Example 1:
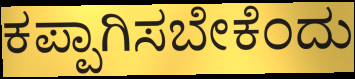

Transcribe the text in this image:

ಕಪ್ಪಾಗಿಸಬೇಕೆಂದು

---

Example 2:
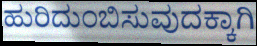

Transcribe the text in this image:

ಹುರಿದುಂಬಿಸುವುದಕ್ಕಾಗಿ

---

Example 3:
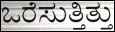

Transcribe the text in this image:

ಒರೆಸುತ್ತಿತ್ತು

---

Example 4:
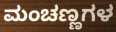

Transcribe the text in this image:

ಮಂಚಣ್ಣಗಳ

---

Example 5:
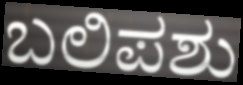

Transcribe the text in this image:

ಬಲಿಪಶು